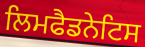
ਲਿਮਫੈਡਨੇਟਿਸ